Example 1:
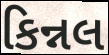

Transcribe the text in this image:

કિન્નલ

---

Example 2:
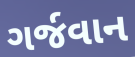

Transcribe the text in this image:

ગર્જવાન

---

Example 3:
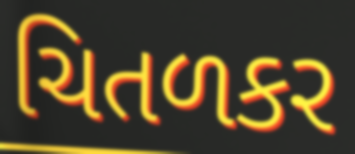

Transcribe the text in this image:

ચિતળકર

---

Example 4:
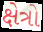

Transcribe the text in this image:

ક્ષેત્રો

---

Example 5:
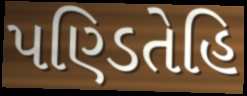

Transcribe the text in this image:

પણ્ડિતેહિ